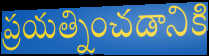
ప్రయత్నించడానికి